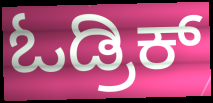
ಓಡ್ರಿಕ್